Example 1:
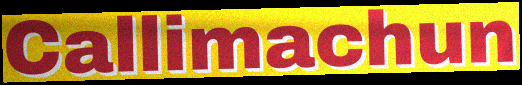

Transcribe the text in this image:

Callimachun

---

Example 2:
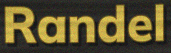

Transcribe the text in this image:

Randel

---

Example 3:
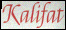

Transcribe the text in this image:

Kalifat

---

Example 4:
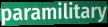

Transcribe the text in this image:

paramilitary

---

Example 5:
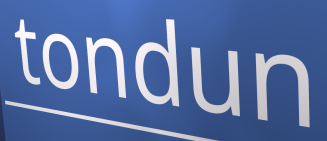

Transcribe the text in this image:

tondun